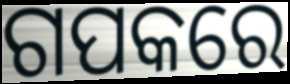
ଗପକରେ